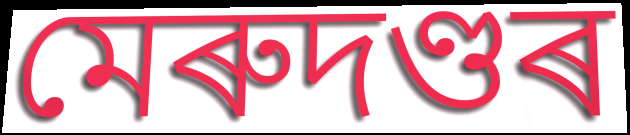
মেৰুদণ্ডৰ